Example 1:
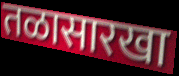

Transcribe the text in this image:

तळासारखा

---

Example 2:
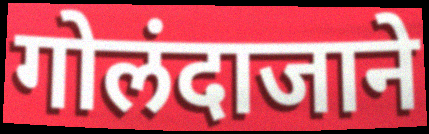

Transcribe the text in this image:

गोलंदाजाने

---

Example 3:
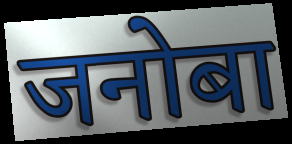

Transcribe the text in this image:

जनोबा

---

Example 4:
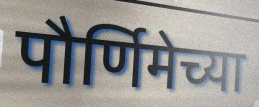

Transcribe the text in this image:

पौर्णिमेच्या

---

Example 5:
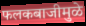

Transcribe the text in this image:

फलकबाजीमुळे